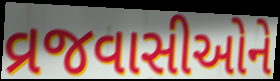
વ્રજવાસીઓને